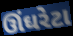
ઊંઘરેટા